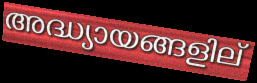
അദ്ധ്യായങ്ങളില്